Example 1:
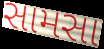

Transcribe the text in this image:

સામસા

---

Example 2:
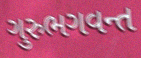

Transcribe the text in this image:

ગુરુભગવન્ત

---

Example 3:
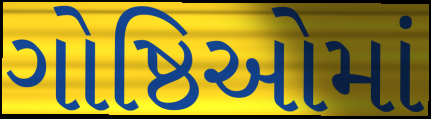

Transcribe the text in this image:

ગોષ્ઠિઓમાં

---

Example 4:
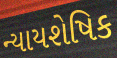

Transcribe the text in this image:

ન્યાયશેષિક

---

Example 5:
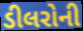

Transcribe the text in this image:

ડીલરોની